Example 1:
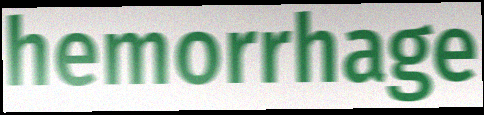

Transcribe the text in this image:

hemorrhage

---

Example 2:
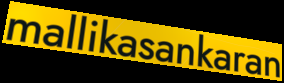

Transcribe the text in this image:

mallikasankaran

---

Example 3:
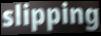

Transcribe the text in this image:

slipping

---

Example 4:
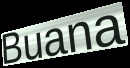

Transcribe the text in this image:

Buana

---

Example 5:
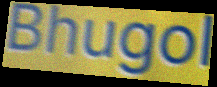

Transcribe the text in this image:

Bhugol